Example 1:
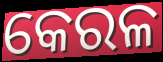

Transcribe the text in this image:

କେରଳ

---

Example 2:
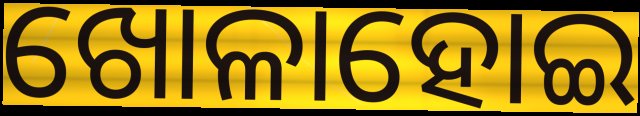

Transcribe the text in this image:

ଖୋଳାହୋଇ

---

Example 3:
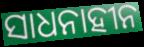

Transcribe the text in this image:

ସାଧନାହୀନ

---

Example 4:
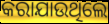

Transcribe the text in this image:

କରାଯାଉଥିଲେ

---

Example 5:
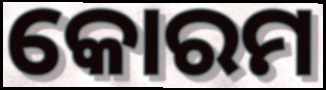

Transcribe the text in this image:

କୋରମ